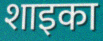
शाइका